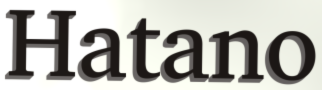
Hatano